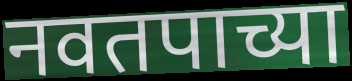
नवतपाच्या